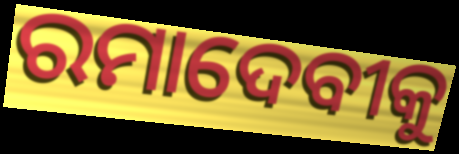
ରମାଦେବୀକୁ